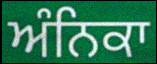
ਅੰਨਿਕਾ